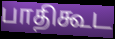
பாதிகூட